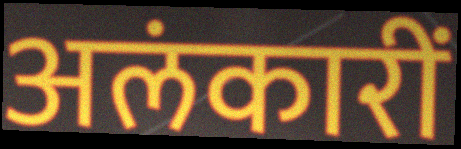
अलंकारीं